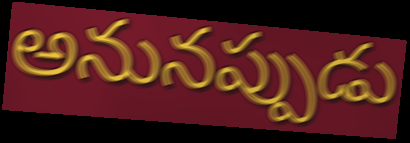
అనునప్పుడు